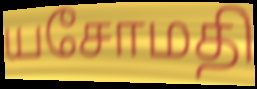
யசோமதி